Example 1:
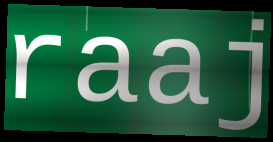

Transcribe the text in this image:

raaj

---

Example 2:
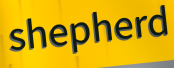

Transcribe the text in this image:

shepherd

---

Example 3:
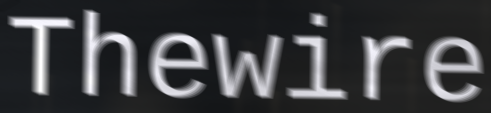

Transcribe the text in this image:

Thewire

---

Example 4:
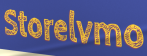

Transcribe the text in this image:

Storelvmo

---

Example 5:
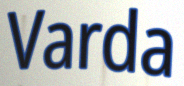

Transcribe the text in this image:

Varda